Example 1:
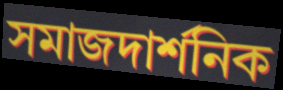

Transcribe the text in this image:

সমাজদার্শনিক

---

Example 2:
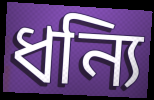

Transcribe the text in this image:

ধন্যি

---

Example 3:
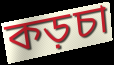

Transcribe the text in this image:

কড়চা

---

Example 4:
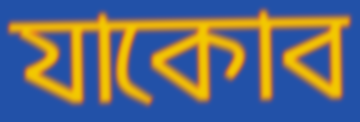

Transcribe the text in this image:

যাকোব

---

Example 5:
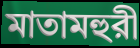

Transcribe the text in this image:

মাতামহুরী